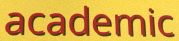
academic